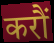
करौं